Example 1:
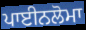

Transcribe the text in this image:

ਪਾਈਨਲੋਮਾ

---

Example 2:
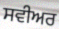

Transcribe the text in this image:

ਸਵੀਅਰ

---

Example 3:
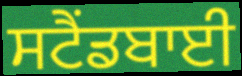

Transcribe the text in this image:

ਸਟੈਂਡਬਾਈ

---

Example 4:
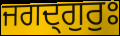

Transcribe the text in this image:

ਜਗਦ੍ਗੁਰੁਃ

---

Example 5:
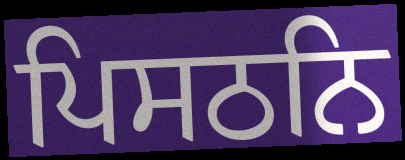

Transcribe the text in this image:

ਪਿਸਠਨਿ